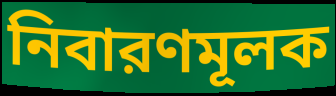
নিবারণমূলক